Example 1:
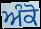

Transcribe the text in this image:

ਅੰਕੋ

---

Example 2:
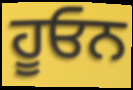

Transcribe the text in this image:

ਹੂਓਨ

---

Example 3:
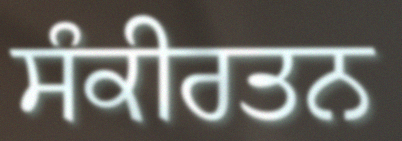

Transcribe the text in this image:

ਸੰਕੀਰਤਨ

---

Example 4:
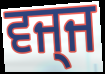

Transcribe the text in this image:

ਵਜ੍ਜ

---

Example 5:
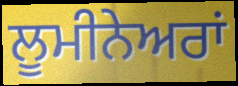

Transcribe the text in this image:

ਲੂਮੀਨੇਅਰਾਂ